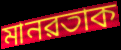
মানৱতাক